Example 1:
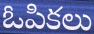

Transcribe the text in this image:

ఓపికలు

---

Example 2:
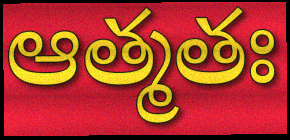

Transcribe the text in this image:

ఆత్మతః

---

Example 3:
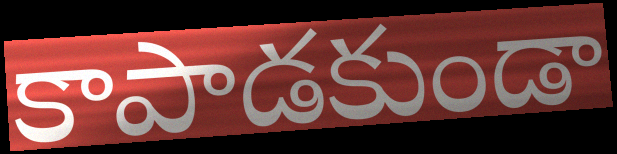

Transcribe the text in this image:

కాపాడకుండా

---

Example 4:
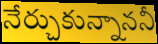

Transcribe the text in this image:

నేర్చుకున్నాననీ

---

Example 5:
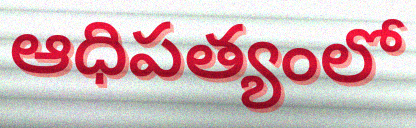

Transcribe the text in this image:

ఆధిపత్యంలో